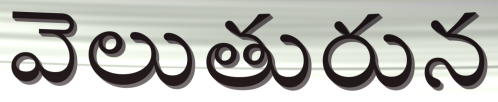
వెలుతురున